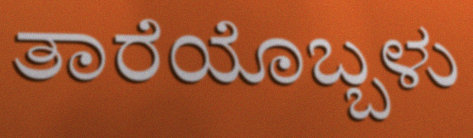
ತಾರೆಯೊಬ್ಬಳು